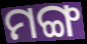
ମଙ୍ଗ